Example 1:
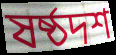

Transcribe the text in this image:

ষষ্ঠদশ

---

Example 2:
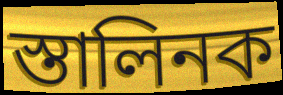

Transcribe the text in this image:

স্তালিনক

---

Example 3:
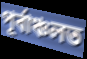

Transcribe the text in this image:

পূৰ্বাঞ্চলত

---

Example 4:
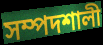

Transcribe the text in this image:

সম্পদশালী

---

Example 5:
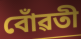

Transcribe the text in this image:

বোঁৱতী